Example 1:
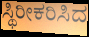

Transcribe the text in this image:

ಸ್ಥಿರೀಕರಿಸಿದ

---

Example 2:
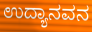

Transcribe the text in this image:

ಉದ್ಯಾನವನ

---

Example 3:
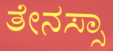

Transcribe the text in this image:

ತೇನಸ್ಸಾ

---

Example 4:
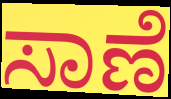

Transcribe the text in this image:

ಸಾಣೆ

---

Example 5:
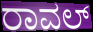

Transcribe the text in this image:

ರಾವಲ್